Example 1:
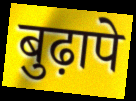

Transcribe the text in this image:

बुढ़ापे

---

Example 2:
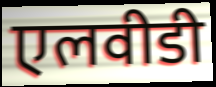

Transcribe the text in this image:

एलवीडी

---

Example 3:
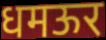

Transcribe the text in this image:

धमऊर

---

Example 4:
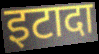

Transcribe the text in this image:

इटादा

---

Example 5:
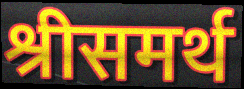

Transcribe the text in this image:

श्रीसमर्थ